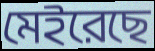
মেইরেছে